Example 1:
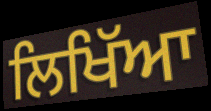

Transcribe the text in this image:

ਲਿਖਿੱਆ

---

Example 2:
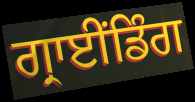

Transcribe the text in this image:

ਗ੍ਰਾਈਂਡਿੰਗ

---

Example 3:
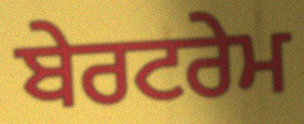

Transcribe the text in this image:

ਬੇਰਟਰੇਮ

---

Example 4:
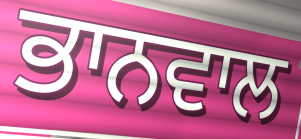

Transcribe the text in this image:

ਭਾਨਵਾਲ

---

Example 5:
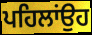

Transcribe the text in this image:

ਪਹਿਲਾਂਉਹ